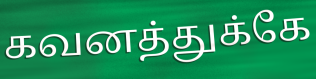
கவனத்துக்கே